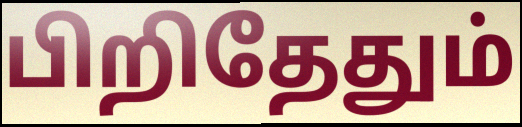
பிறிதேதும்